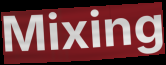
Mixing